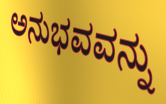
ಅನುಭವವನ್ನು